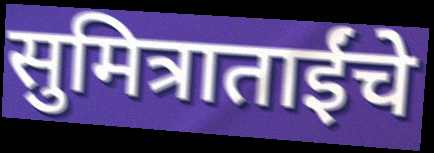
सुमित्राताईंचे